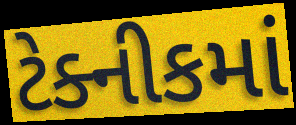
ટેક્નીકમાં